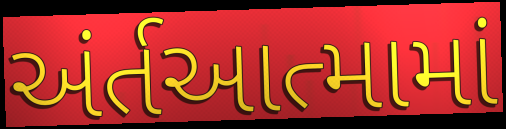
અંર્તઆત્મામાં